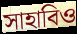
সাহাবিও